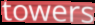
towers